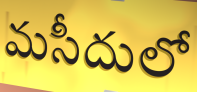
మసీదులో